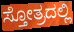
ಸ್ತೋತ್ರದಲ್ಲಿ